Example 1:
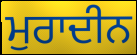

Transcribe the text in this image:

ਮੁਰਾਦੀਨ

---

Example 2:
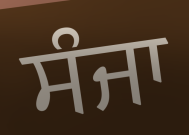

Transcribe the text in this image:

ਸੰਜਾ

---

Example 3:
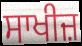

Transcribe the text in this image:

ਸਾਖੀਜ਼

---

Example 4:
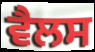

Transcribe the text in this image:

ਵੈਲਸ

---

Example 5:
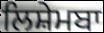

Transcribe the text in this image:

ਲਿਸ਼ੇਮਬਾ